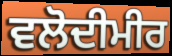
ਵਲੋਦੀਮੀਰ